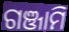
ଗଞ୍ଜାମି